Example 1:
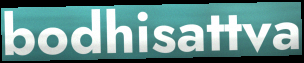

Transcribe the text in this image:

bodhisattva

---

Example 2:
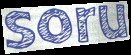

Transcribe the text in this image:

soru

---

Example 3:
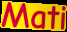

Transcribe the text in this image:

Mati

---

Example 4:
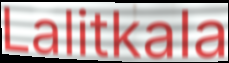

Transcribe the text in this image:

Lalitkala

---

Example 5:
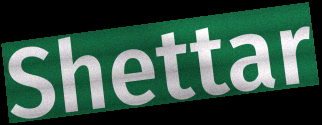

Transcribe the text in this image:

Shettar